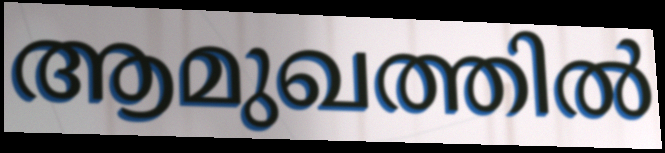
ആമുഖത്തിൽ